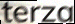
terza